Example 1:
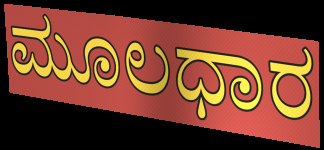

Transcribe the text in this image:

ಮೂಲಧಾರ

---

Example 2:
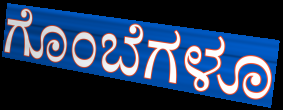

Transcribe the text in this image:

ಗೊಂಬೆಗಳೂ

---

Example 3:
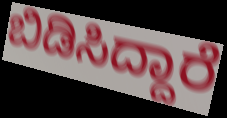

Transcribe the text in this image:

ಬಿಡಿಸಿದ್ದಾರೆ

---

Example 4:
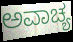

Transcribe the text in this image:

ಅವಾಚ್ಯ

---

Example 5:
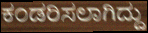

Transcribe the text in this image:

ಕಂಡರಿಸಲಾಗಿದ್ದು